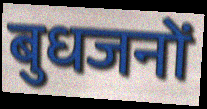
बुधजनों